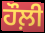
ਹੌਲ਼ੀ